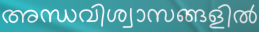
അന്ധവിശ്വാസങ്ങളിൽ